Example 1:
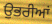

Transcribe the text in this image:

ਉਭਰੀਆਂ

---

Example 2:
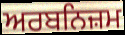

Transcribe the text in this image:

ਅਰਬਨਿਜ਼ਮ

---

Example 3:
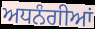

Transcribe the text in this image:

ਅਧਨੰਗੀਆਂ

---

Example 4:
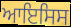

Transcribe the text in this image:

ਆਇਸਿਸ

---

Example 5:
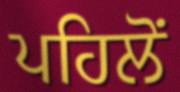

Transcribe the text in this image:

ਪਹਿਲੋਂ